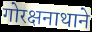
गोरक्षनाथाने